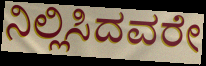
ನಿಲ್ಲಿಸಿದವರೇ